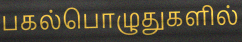
பகல்பொழுதுகளில்